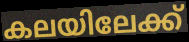
കലയിലേക്ക്